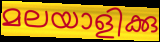
മലയാളിക്കു